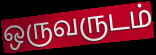
ஒருவருடம்